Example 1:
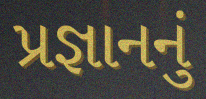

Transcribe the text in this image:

પ્રજ્ઞાનનું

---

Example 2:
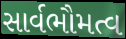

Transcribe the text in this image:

સાર્વભૌમત્વ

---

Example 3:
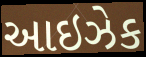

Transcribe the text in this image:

આઇઝેક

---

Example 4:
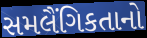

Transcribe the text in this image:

સમલૈંગિકતાનો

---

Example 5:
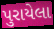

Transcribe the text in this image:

પુરાયેલા